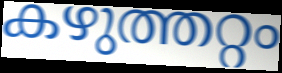
കഴുത്തറ്റം